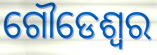
ଗୌଡେଶ୍ୱର